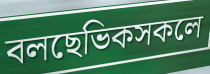
বলছেভিকসকলে